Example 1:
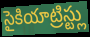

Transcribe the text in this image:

సైకియాట్రిస్ట్లు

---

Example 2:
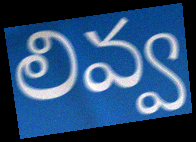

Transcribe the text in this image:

లివ్వ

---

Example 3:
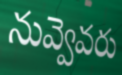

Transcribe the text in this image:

నువ్వెవరు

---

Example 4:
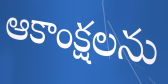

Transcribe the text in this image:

ఆకాంక్షలను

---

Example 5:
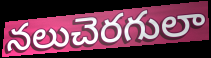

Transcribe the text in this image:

నలుచెరగులా